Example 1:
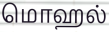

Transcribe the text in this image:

மொஹல்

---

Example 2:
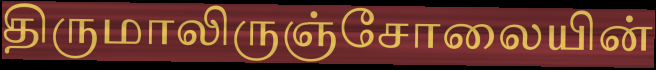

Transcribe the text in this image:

திருமாலிருஞ்சோலையின்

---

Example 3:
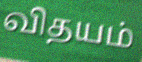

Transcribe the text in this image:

விதயம்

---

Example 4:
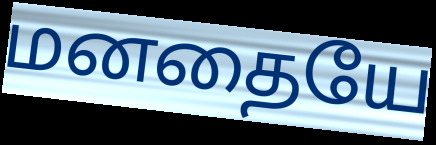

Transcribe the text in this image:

மனதையே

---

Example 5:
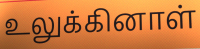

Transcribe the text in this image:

உலுக்கினாள்